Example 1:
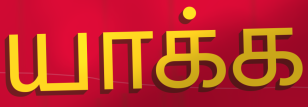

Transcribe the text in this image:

யாக்க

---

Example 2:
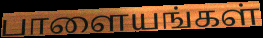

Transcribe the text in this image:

பாளையங்கள்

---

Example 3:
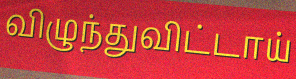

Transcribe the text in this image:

விழுந்துவிட்டாய்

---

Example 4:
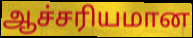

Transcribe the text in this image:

ஆச்சரியமான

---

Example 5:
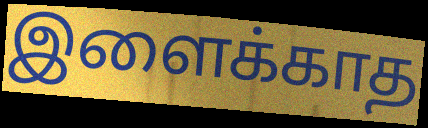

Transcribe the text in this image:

இளைக்காத